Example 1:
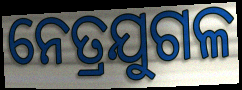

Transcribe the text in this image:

ନେତ୍ରଯୁଗଳ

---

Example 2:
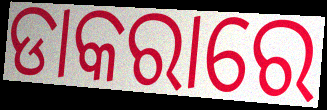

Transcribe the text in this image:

ଡାକରାରେ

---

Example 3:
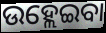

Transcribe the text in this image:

ଉହ୍ଲେଇବା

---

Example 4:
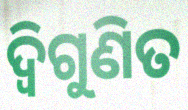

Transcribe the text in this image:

ଦ୍ୱିଗୁଣିତ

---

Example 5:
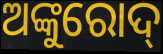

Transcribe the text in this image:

ଅଙ୍କୁରୋଦ୍